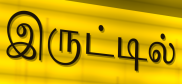
இருட்டில்